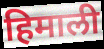
हिमाली